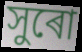
সুৰো